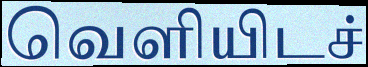
வெளியிடச்